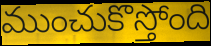
ముంచుకొస్తోంది